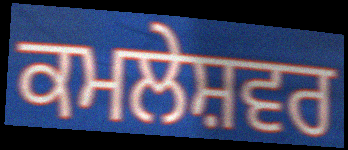
ਕਮਲੇਸ਼ਵਰ